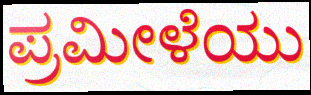
ಪ್ರಮೀಳೆಯು